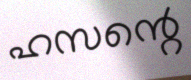
ഹസന്റെ